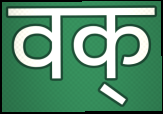
वक्